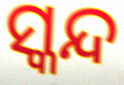
ସ୍କନ୍ଦ